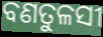
ବଣତୁଳସୀ